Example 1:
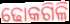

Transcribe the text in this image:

ଢୋକଗିଳି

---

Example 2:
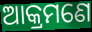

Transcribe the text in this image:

ଆକ୍ରମଣେ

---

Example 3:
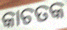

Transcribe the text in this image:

କାଚତକ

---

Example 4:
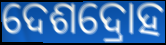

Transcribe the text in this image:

ଦେଶଦ୍ରୋହ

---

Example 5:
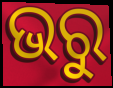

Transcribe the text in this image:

ଭରୁ